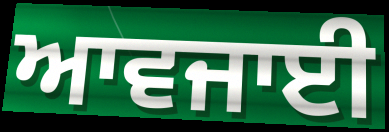
ਆਵਜਾਈ